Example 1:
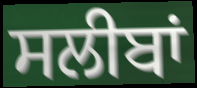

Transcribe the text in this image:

ਸਲੀਬਾਂ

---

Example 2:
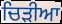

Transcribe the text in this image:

ਚਿੜੀਆ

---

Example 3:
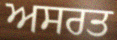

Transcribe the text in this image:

ਅਸਰਤ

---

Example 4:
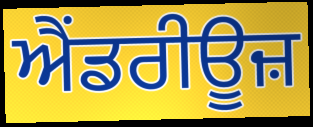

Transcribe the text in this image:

ਐਂਡਰੀਊਜ਼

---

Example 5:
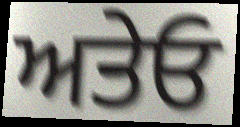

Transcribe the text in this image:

ਅਤੇਓ